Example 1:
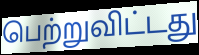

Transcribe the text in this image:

பெற்றுவிட்டது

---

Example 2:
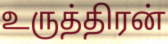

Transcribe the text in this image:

உருத்திரன்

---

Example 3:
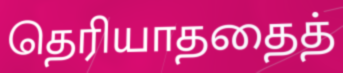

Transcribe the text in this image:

தெரியாததைத்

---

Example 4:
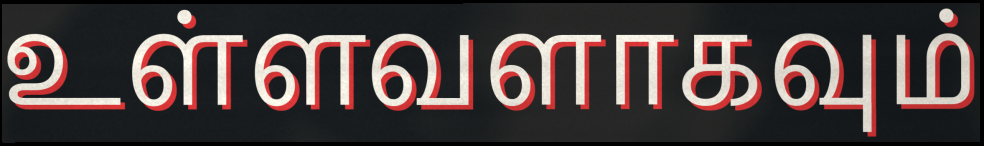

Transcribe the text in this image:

உள்ளவளாகவும்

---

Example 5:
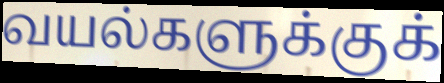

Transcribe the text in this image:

வயல்களுக்குக்